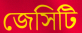
জেসিটি